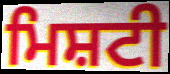
ਮਿਸ਼ਟੀ